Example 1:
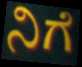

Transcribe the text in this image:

ನಿಗೆ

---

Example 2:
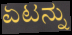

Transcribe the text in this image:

ಏಟನ್ನು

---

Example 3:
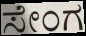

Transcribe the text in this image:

ಸೇಂಗ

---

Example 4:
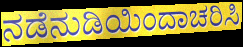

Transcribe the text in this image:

ನಡೆನುಡಿಯಿಂದಾಚರಿಸಿ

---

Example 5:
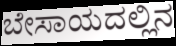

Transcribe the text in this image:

ಬೇಸಾಯದಲ್ಲಿನ